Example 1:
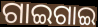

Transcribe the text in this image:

ଗାଇଗାଇ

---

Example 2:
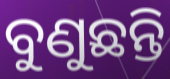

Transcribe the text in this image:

ବୁଣୁଛନ୍ତି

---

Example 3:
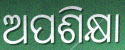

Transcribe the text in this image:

ଅପଶିକ୍ଷା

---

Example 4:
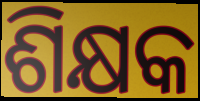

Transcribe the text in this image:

ଶିକ୍ଷକ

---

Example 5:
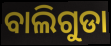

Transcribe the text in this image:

ବାଲିଗୁଡା